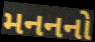
મનનનો